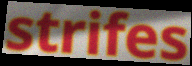
strifes